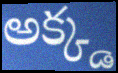
అక్క్డ